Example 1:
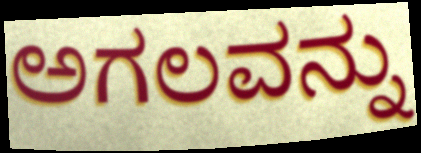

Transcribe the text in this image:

ಅಗಲವನ್ನು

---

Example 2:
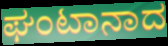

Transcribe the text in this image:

ಘಂಟಾನಾದ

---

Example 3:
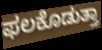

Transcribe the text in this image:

ಫಲಕೊಡುತ್ತಾ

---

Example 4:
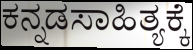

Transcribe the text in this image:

ಕನ್ನಡಸಾಹಿತ್ಯಕ್ಕೆ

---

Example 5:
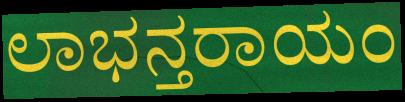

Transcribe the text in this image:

ಲಾಭನ್ತರಾಯಂ